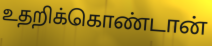
உதறிக்கொண்டான்